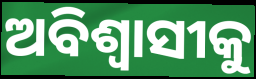
ଅବିଶ୍ୱାସୀକୁ